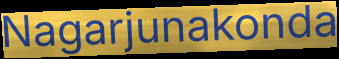
Nagarjunakonda